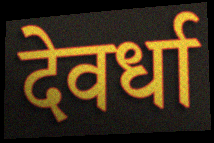
देवर्धा